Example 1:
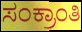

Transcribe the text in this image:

ಸಂಕ್ರಾಂತಿ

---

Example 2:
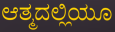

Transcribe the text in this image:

ಆತ್ಮದಲ್ಲಿಯೂ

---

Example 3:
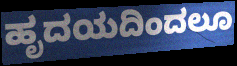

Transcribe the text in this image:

ಹೃದಯದಿಂದಲೂ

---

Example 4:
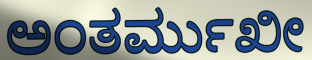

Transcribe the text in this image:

ಅಂತರ್ಮುಖೀ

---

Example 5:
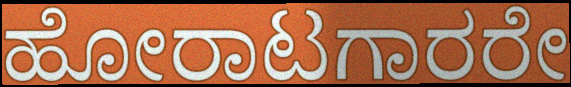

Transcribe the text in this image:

ಹೋರಾಟಗಾರರೇ